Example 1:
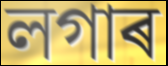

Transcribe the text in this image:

লগাৰ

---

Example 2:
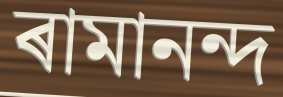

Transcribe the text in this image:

ৰামানন্দ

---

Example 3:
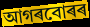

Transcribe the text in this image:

আগৰবোৰৰ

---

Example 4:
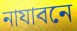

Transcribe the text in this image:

নাযাবনে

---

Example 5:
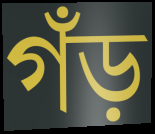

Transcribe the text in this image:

গঁড়